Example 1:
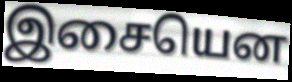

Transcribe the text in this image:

இசையென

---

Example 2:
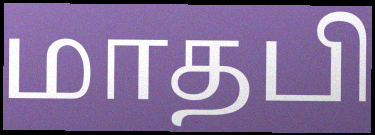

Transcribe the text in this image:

மாதபி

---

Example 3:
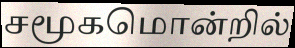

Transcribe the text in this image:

சமூகமொன்றில்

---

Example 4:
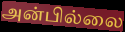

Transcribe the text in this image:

அன்பில்லை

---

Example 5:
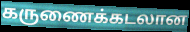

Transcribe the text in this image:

கருணைக்கடலான